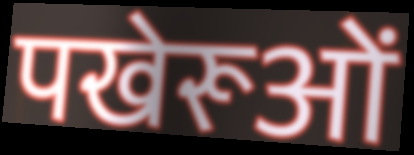
पखेरूओं